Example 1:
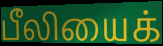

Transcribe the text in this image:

பீலியைக்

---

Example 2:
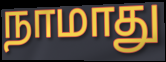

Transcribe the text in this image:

நாமாது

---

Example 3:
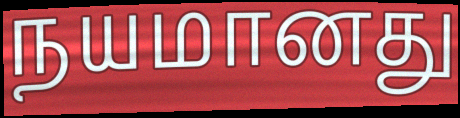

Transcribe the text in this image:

நயமானது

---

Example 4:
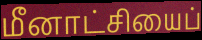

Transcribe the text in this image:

மீனாட்சியைப்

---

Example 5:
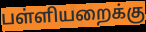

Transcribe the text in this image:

பள்ளியறைக்கு